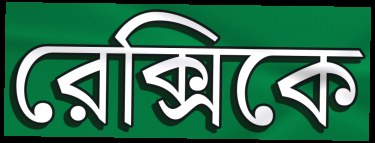
রেক্সিকে